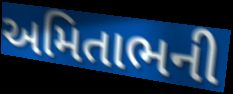
અમિતાભની